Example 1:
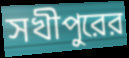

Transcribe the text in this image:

সখীপুরের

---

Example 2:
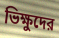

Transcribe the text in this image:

ভিক্ষুদের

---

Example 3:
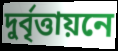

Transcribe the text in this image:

দুর্বৃত্তায়নে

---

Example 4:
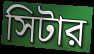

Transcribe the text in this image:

সিটার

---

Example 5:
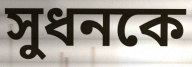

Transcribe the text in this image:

সুধনকে